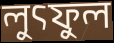
লুৎফুল